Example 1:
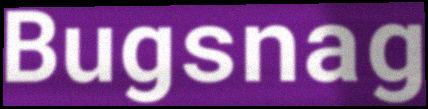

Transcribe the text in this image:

Bugsnag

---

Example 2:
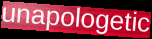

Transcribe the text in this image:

unapologetic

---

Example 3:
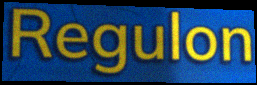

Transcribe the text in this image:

Regulon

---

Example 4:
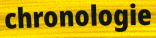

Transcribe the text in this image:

chronologie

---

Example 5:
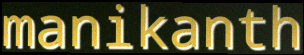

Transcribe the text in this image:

manikanth